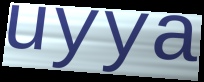
uyya